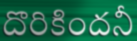
దొరికిందనీ